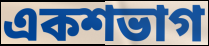
একশভাগ